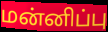
மன்னிப்பு